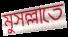
মুসল্লাতে